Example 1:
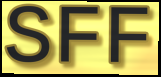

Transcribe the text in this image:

SFF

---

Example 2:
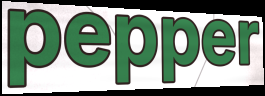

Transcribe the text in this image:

pepper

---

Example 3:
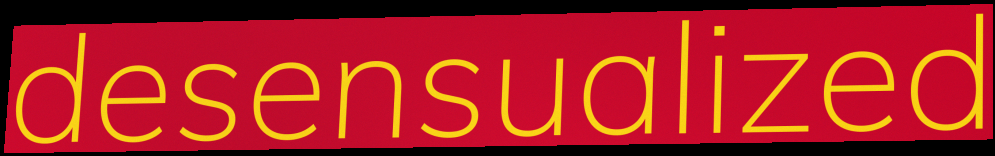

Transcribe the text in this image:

desensualized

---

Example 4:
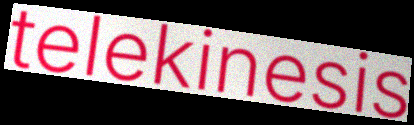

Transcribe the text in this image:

telekinesis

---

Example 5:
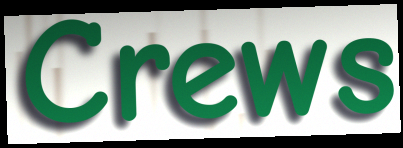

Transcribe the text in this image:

Crews